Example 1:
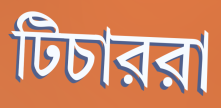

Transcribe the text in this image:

টিচাররা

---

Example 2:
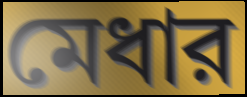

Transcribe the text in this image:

মেধার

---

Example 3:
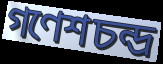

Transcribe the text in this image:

গণেশচন্দ্র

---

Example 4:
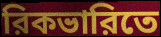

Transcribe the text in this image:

রিকভারিতে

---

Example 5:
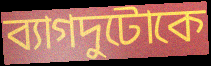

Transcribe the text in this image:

ব্যাগদুটোকে